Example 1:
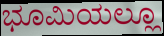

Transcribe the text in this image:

ಭೂಮಿಯಲ್ಲೂ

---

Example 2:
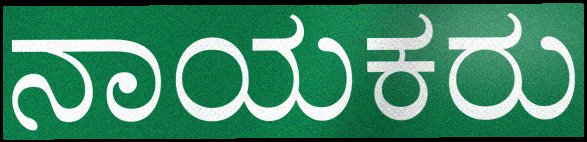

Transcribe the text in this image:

ನಾಯಕರು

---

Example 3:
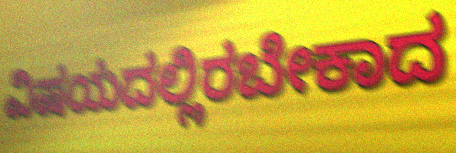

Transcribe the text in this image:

ವಿಷಯದಲ್ಲಿರಬೇಕಾದ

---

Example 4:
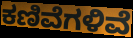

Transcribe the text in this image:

ಕಣಿವೆಗಳಿವೆ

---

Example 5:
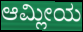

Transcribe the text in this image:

ಆಮ್ಲೀಯ